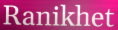
Ranikhet